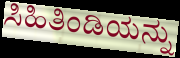
ಸಿಹಿತಿಂಡಿಯನ್ನು